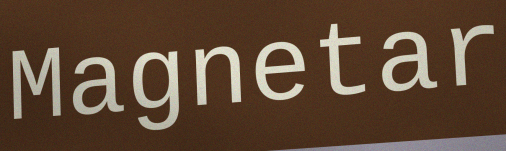
Magnetar